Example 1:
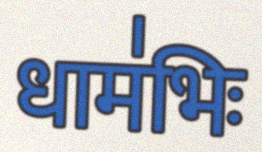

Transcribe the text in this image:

धाम॑भिः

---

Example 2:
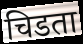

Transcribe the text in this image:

चिडता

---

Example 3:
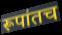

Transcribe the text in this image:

रूपांतच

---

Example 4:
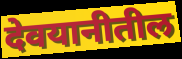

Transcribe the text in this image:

देवयानीतील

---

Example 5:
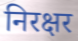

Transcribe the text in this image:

निरक्षर